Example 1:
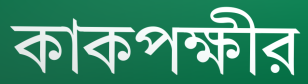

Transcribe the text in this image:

কাকপক্ষীর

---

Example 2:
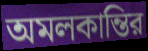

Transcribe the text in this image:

অমলকান্তির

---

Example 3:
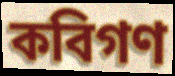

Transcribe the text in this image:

কবিগণ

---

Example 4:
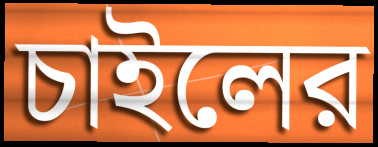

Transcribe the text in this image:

চাইলের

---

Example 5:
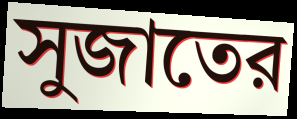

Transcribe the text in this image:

সুজাতের